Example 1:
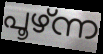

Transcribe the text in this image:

പൂഴ്ന്ന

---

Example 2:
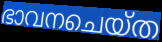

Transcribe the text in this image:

ഭാവനചെയ്ത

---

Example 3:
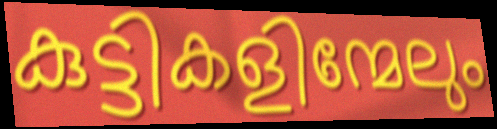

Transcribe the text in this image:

കുട്ടികളിന്മേലും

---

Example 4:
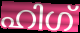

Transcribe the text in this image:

ഹിഗ്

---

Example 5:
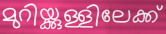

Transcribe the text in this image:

മുറിയ്ക്കുള്ളിലേക്ക്